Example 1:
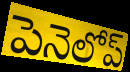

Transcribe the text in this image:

పెనెలోప్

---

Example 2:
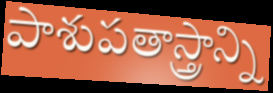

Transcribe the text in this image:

పాశుపతాస్త్రాన్ని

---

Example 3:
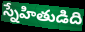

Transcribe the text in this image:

స్నేహితుడిది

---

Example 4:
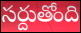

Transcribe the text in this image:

సర్దుతోంది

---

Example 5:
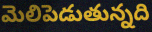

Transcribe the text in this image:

మెలిపెడుతున్నది